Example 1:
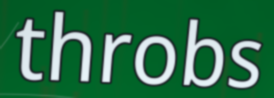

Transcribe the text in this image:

throbs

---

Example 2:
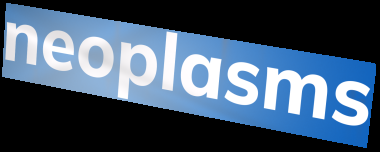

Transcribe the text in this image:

neoplasms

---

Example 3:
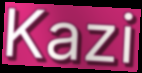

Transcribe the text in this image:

Kazi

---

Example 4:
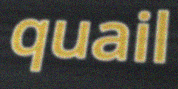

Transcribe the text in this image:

quail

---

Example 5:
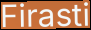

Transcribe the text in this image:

Firasti